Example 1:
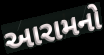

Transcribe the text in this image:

આરામનો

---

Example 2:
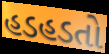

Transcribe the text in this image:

હડહડતો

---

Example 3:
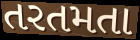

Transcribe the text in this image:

તરતમતા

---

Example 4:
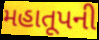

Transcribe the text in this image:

મહાતૂપની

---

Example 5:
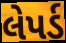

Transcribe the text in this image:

લેપર્ડ